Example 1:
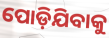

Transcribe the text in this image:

ପୋଡ଼ିଯିବାକୁ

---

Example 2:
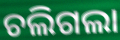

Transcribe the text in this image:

ଚଲିଗଲା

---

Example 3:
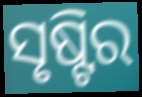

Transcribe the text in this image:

ସୃଷ୍ଟିର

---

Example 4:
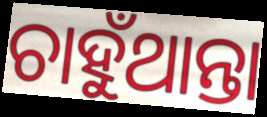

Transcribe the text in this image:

ଚାହୁଁଥାନ୍ତା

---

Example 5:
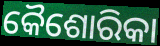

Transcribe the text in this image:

କୈଶୋରିକା